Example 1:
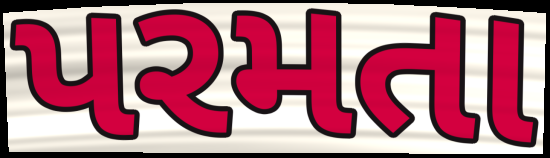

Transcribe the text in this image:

પરમતા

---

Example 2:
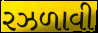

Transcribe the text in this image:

રઝળાવી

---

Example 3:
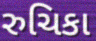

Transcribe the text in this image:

રુચિકા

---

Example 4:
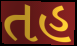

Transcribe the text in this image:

તહ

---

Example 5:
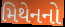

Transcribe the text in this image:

મિથેનનો